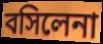
বসিলেনা